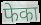
फेका